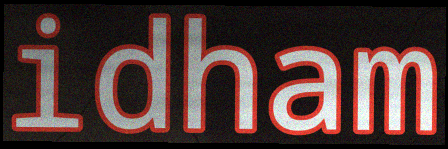
idham